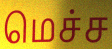
மெச்ச